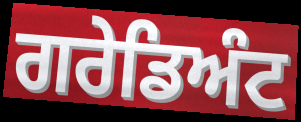
ਗਰੇਡਿਅੰਟ